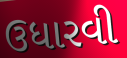
ઉધારવી